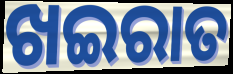
ଖଇରାତ